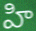
హి